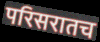
परिसरातच